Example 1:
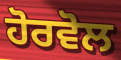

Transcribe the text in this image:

ਹੋਰਵੋਲ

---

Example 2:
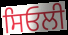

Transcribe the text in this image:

ਸਿਓਲੀ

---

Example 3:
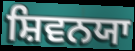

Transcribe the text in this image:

ਸ਼ਿਵਨਯਾ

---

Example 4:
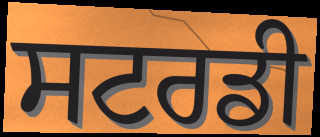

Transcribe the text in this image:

ਸਟਰਡੀ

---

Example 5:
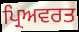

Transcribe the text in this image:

ਪ੍ਰਿਅਵਰਤ